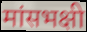
मांसभक्षी